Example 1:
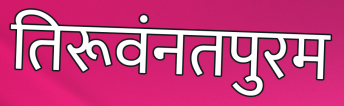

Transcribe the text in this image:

तिरूवंनतपुरम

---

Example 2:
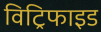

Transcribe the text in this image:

विट्रिफाइड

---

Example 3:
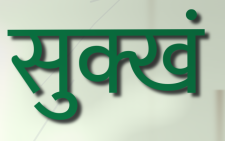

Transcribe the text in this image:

सुक्खं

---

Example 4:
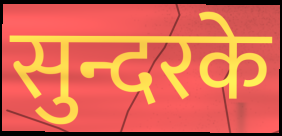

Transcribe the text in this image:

सुन्दरके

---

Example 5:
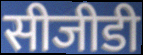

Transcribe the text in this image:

सीजीडी